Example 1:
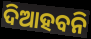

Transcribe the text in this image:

ଦିଆହବନି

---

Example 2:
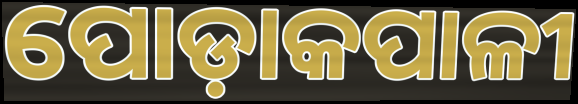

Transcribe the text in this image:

ପୋଡ଼ାକପାଳୀ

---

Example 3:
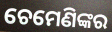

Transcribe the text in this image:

ଚେମେଣିଙ୍କର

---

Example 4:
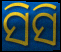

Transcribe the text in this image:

ସିସି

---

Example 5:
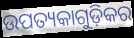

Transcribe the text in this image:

ଉପତ୍ୟକାଗୁଡ଼ିକର